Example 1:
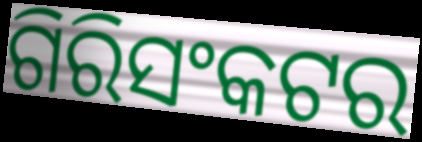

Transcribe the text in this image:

ଗିରିସଂକଟର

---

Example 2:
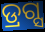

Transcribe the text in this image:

ଡ୍ରଗ୍ସ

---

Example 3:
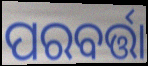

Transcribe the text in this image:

ପରବର୍ତ୍ତା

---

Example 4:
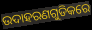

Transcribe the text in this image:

ଉଦାହରଣଗୁଡିକରେ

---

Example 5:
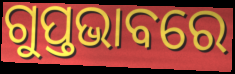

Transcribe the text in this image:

ଗୁପ୍ତଭାବରେ